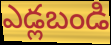
ఎడ్లబండి